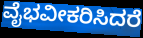
ವೈಭವೀಕರಿಸಿದರೆ